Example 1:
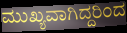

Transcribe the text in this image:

ಮುಖ್ಯವಾಗಿದ್ದರಿಂದ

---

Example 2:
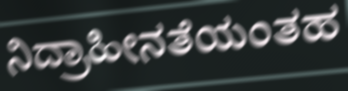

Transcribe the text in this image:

ನಿದ್ರಾಹೀನತೆಯಂತಹ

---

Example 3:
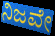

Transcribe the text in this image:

ನಿಜವೇ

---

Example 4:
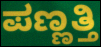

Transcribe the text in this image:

ಪಣ್ಣತ್ತಿ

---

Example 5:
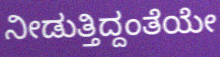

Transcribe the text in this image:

ನೀಡುತ್ತಿದ್ದಂತೆಯೇ